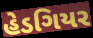
હેડગિયર